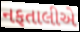
નફતાલીએ